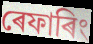
ৰেফাৰিং